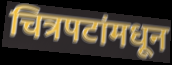
चित्रपटांमधून